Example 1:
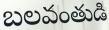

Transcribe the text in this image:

బలవంతుడి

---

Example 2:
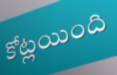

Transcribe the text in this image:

కోట్లయింది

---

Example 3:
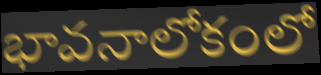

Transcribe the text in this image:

భావనాలోకంలో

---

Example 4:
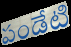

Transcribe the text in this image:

పండేటి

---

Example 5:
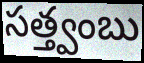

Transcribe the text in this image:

సత్త్వంబు